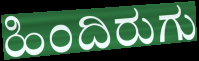
ಹಿಂದಿರುಗು